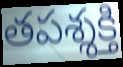
తపశ్శక్తి